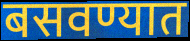
बसवण्यात